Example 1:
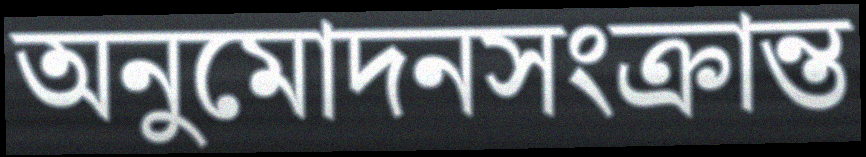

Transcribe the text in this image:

অনুমোদনসংক্রান্ত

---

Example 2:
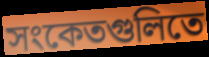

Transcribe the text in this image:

সংকেতগুলিতে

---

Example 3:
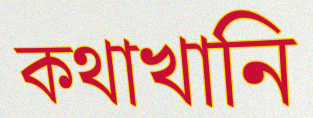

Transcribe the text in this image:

কথাখানি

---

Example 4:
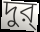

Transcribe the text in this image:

দুর্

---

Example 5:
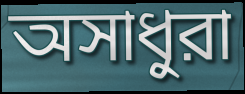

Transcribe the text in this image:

অসাধুরা